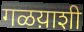
गळय़ाशी